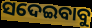
ସଦେଇବାବୁ